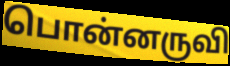
பொன்னருவி